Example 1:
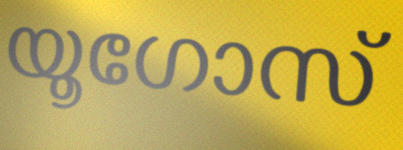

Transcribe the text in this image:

യൂഗോസ്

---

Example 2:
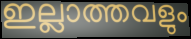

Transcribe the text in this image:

ഇല്ലാത്തവളും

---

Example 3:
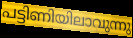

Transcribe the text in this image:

പട്ടിണിയിലാവുന്നു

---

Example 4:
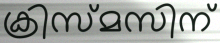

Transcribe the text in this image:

ക്രിസ്മസിന്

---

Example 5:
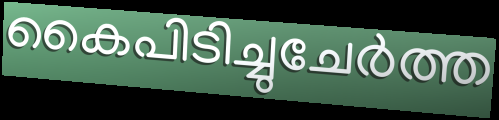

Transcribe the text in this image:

കൈപിടിച്ചുചേർത്ത